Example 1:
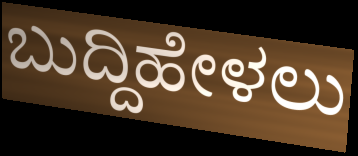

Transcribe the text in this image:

ಬುದ್ದಿಹೇಳಲು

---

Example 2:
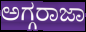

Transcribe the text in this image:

ಅಗ್ಗರಾಜಾ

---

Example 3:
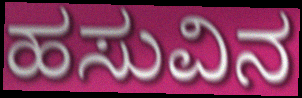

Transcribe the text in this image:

ಹಸುವಿನ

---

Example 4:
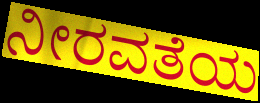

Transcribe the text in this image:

ನೀರವತೆಯ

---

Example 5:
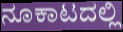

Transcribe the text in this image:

ನೂಕಾಟದಲ್ಲಿ